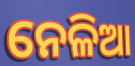
ନେଳିଆ